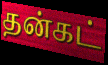
தன்கட்